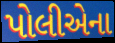
પોલીએના